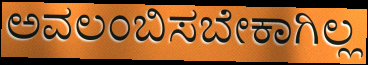
ಅವಲಂಬಿಸಬೇಕಾಗಿಲ್ಲ